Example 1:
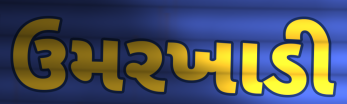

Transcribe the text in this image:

ઉમરખાડી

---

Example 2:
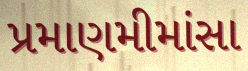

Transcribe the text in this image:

પ્રમાણમીમાંસા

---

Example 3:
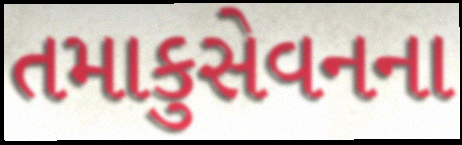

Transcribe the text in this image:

તમાકુસેવનના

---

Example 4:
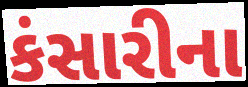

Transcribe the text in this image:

કંસારીના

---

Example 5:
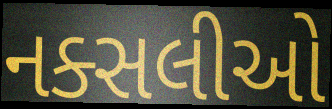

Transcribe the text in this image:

નક્સલીઓ